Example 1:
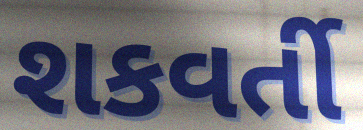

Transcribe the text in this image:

શકવર્તી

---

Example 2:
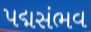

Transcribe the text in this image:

પદ્મસંભવ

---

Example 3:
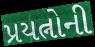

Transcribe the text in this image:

પ્રયત્નોની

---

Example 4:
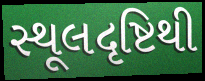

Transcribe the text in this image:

સ્થૂલદૃષ્ટિથી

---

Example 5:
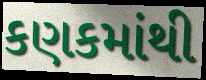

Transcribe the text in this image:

કણકમાંથી